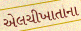
એલચીખાતાના